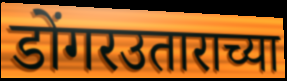
डोंगरउताराच्या